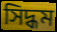
সিদ্ধম